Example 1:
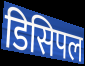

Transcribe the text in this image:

डिसिपल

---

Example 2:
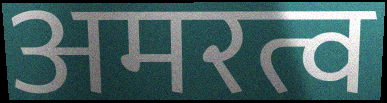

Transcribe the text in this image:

अमरत्व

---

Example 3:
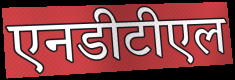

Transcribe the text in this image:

एनडीटीएल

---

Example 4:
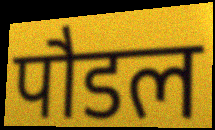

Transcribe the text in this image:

पौडल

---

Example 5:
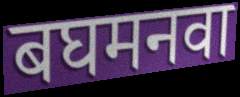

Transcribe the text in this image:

बघमनवा